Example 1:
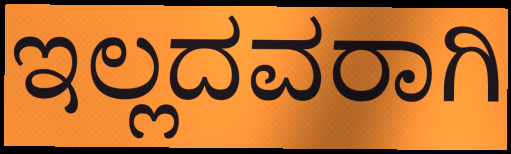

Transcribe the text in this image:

ಇಲ್ಲದವರಾಗಿ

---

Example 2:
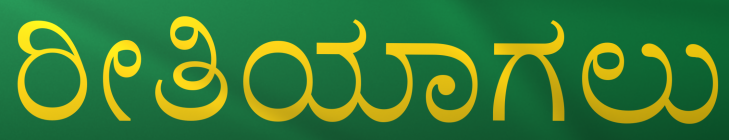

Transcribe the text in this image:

ರೀತಿಯಾಗಲು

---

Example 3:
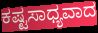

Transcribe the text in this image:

ಕಷ್ಟಸಾಧ್ಯವಾದ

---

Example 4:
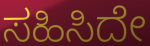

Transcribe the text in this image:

ಸಹಿಸಿದೇ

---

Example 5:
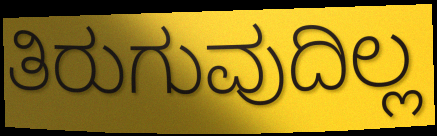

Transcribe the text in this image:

ತಿರುಗುವುದಿಲ್ಲ